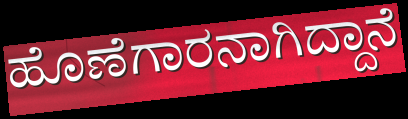
ಹೊಣೆಗಾರನಾಗಿದ್ದಾನೆ